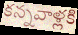
కన్నవాళ్లకి